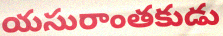
యసురాంతకుడు